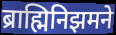
ब्राह्मिनिझमने